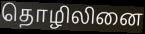
தொழிலினை